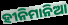
ହୀନିମାନିଆ